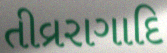
તીવ્રરાગાદિ